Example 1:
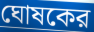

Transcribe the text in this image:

ঘোষকের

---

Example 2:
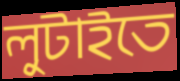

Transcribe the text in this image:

লুটাইতে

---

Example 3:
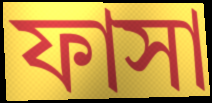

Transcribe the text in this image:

ফাসা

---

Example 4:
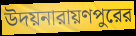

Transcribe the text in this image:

উদয়নারায়ণপুরের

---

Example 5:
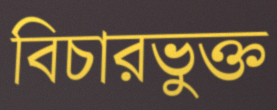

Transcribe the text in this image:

বিচারভুক্ত